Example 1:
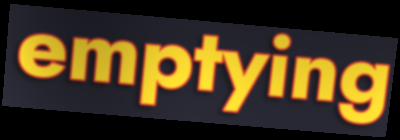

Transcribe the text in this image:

emptying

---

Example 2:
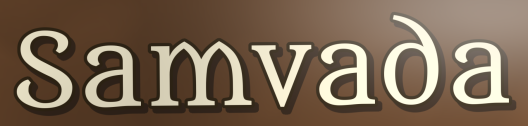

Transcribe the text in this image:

Samvada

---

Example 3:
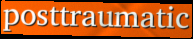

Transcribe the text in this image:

posttraumatic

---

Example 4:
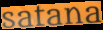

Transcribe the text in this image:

satana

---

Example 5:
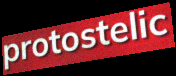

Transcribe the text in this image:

protostelic